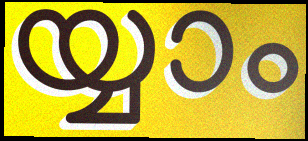
യ്യാം